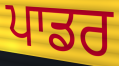
ਪਾਡਰ